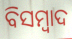
ବିସମ୍ୱାଦ